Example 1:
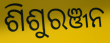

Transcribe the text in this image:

ଶିଶୁରଞ୍ଜନ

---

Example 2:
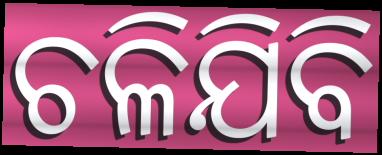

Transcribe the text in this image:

ଚଳିଯିବି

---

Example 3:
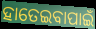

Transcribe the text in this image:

ହାତେଇବାପାଇଁ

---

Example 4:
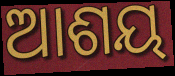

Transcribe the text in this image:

ଆଶୟ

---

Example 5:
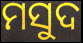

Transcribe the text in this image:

ମସୁଦ